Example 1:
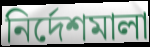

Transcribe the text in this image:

নির্দেশমালা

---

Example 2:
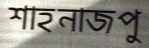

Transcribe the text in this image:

শাহনাজপু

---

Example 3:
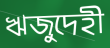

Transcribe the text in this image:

ঋজুদেহী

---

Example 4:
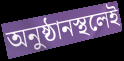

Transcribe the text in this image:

অনুষ্ঠানস্থলেই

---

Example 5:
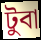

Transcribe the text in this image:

টুবা